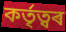
কৰ্তৃত্বৰ